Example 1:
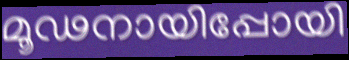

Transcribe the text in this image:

മൂഢനായിപ്പോയി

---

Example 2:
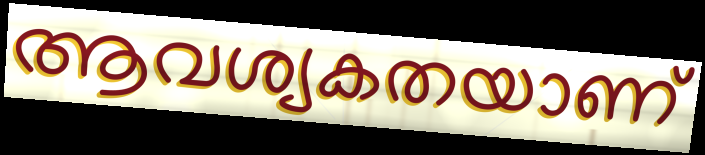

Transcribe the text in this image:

ആവശ്യകതയാണ്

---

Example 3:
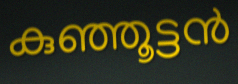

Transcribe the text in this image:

കുഞ്ഞൂട്ടൻ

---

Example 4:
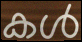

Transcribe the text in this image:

കൾ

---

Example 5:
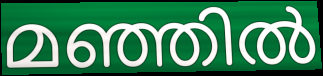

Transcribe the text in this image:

മഞ്ഞിൽ